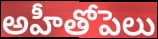
అహీతోపెలు